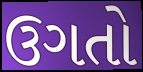
ઉગતો